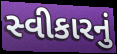
સ્વીકારનું